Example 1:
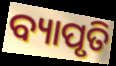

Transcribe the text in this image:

ବ୍ୟାପୃତି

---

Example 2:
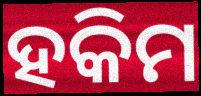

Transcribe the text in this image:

ହକିମ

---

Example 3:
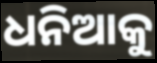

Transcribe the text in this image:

ଧନିଆକୁ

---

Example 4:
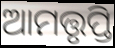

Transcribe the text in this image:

ଆମତ୍ତୃପ୍ତି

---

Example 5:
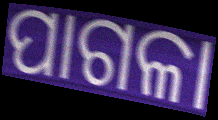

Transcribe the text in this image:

ପାଗଳା